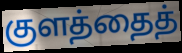
குளத்தைத்